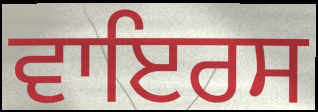
ਵਾਇਰਸ